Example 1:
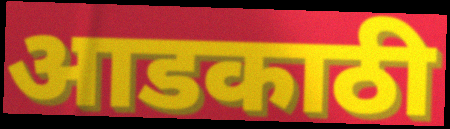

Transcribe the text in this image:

आडकाठी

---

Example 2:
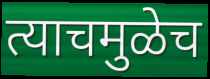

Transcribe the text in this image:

त्याचमुळेच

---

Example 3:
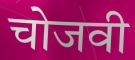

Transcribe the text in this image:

चोजवी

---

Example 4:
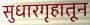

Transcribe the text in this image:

सुधारगृहातून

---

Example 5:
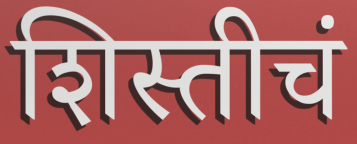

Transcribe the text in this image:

शिस्तीचं